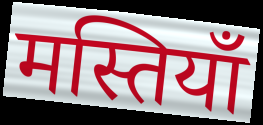
मस्तियाँ